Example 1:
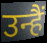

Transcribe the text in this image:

उन्‍हैं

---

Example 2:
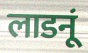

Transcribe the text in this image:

लाडनूं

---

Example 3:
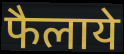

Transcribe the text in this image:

फैलाये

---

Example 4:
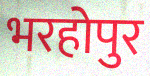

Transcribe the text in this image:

भरहोपुर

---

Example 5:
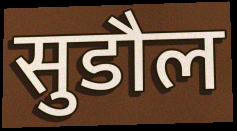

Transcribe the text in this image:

सुडौल